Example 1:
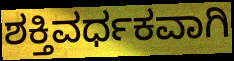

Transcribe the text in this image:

ಶಕ್ತಿವರ್ಧಕವಾಗಿ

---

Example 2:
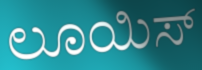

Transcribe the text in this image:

ಲೂಯಿಸ್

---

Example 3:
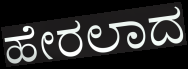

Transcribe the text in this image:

ಹೇರಲಾದ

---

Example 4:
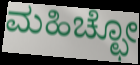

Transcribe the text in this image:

ಮಹಿಚ್ಛೋ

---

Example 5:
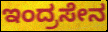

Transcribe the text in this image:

ಇಂದ್ರಸೇನ